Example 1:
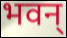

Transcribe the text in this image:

भवन्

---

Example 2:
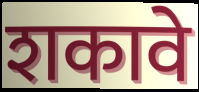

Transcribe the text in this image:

शकावे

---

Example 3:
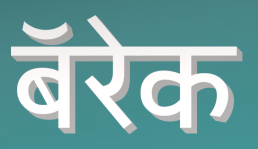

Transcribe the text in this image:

बॅरेक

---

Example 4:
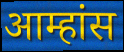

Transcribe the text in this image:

आम्हांस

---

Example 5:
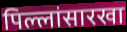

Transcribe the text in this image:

पिल्लांसारखा